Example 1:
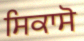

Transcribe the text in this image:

ਸਿਕਾਸੋ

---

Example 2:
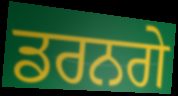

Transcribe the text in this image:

ਡਰਨਗੇ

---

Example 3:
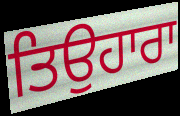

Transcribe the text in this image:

ਤਿਉਹਾਰਾ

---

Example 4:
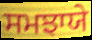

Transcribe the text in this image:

ਸਮਝਾਯੇ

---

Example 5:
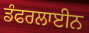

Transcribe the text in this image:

ਡੰਫਰਲਾਈਨ